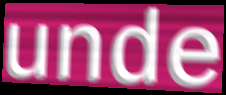
unde